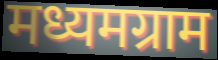
मध्यमग्राम